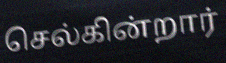
செல்கின்றார்